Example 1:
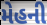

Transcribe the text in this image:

મેહની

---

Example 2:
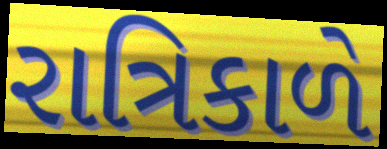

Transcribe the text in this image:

રાત્રિકાળે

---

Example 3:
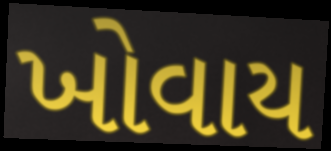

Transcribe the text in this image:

ખોવાય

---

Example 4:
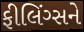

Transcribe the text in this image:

ફીલિંગ્સને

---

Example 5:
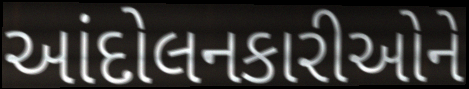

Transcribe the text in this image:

આંદોલનકારીઓને